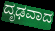
ದೃಢವಾದ